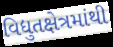
વિદ્યુતક્ષેત્રમાંથી